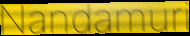
Nandamuri